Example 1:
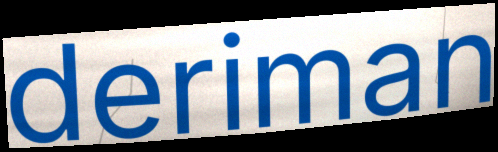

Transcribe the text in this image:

deriman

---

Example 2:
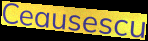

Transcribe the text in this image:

Ceausescu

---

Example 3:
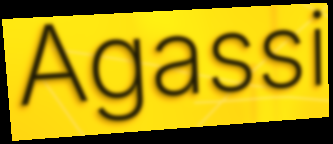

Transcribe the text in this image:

Agassi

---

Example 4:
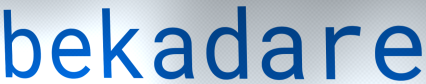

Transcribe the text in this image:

bekadare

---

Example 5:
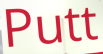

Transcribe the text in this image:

Putt